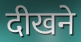
दीखने